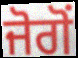
ਜੋਗੋਂ